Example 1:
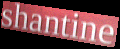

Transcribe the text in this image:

shantine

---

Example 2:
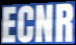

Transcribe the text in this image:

ECNR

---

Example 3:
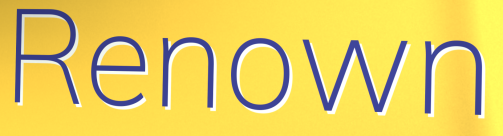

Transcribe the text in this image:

Renown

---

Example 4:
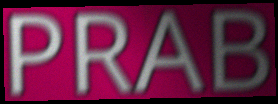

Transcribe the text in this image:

PRAB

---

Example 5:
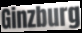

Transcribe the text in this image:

Ginzburg